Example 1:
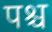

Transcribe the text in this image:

पश्च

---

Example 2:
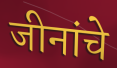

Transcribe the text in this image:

जीनांचे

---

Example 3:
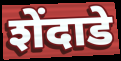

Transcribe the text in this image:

शेंदाडे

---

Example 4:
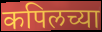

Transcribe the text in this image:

कपिलच्या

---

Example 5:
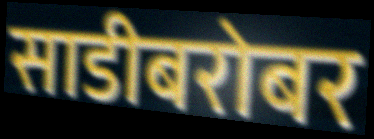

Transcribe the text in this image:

साडीबरोबर